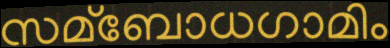
സമ്ബോധഗാമിം